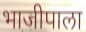
भाजीपाला